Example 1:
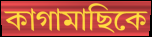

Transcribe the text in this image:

কাগামাছিকে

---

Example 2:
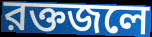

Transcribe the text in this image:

রক্তজলে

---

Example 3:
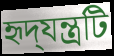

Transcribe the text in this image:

হৃদ্‌যন্ত্রটি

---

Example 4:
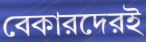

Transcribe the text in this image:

বেকারদেরই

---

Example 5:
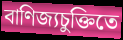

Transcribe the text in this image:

বাণিজ্যচুক্তিতে